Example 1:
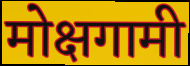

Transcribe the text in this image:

मोक्षगामी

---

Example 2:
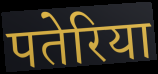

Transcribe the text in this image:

पतेरिया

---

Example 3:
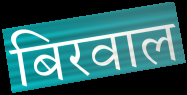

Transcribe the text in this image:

बिरवाल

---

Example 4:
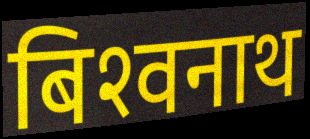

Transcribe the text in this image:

बिश्वनाथ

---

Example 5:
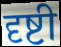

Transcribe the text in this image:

दृष्टी